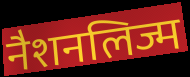
नैशनलिज्म